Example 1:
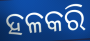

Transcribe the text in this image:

ହଳକରି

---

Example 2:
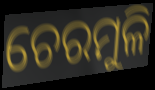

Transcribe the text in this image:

ଚେରମୁଳି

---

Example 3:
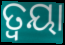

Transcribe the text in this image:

ତ୍ୱୟା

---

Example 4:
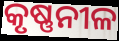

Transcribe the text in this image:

କୃଷ୍ଣନୀଳ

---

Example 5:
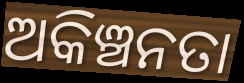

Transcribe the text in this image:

ଅକିଞ୍ଚନତା